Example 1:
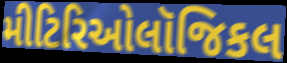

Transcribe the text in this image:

મીટિરિઓલૉજિકલ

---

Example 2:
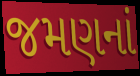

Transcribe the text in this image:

જમણનાં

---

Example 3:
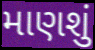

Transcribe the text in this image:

માણશું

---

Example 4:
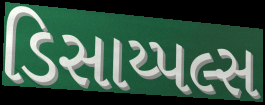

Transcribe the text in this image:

ડિસાય્પલ્સ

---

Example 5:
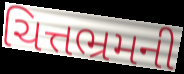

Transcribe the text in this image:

ચિત્તભ્રમની